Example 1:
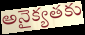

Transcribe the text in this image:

అనైక్యతకు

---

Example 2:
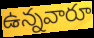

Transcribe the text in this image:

ఉన్నవారూ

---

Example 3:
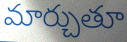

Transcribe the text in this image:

మార్చుతూ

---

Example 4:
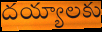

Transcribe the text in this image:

దయ్యాలకు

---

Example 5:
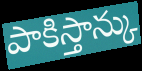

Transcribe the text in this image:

పాకిస్తాన్కు